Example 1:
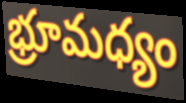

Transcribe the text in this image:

భ్రూమధ్యం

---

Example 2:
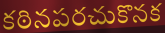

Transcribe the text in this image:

కఠినపరచుకొనక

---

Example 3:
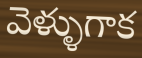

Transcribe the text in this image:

వెళ్ళుగాక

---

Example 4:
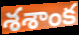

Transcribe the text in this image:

శశాంక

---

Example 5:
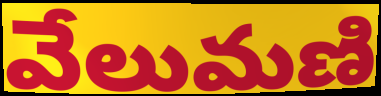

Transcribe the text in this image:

వేలుమణి